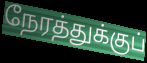
நேரத்துக்குப்